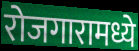
रोजगारामध्ये